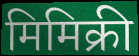
मिमिक्री